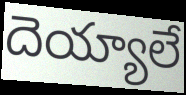
దెయ్యాలే